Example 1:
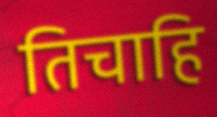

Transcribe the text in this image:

तिचाहि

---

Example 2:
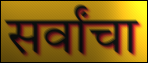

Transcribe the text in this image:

सर्वांचा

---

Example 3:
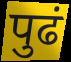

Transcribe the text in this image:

पुढं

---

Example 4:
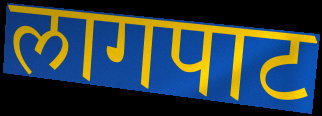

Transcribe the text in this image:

लागपाट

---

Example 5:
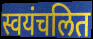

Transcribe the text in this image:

स्वयंचलित